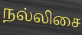
நல்லிசை